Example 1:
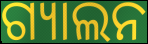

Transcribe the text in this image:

ଗ୍ୟାଲନ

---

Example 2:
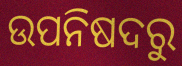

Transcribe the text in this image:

ଉପନିଷଦରୁ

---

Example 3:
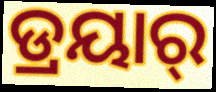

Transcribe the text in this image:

ଡ୍ରୟାର୍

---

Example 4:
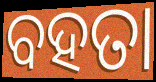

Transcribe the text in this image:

ବହତା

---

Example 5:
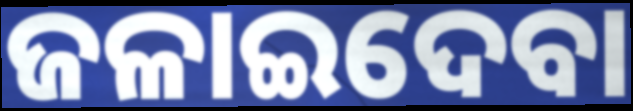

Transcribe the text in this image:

ଜଳାଇଦେବା